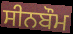
ਸੀਨਬੌਮ